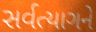
સર્વત્યાગને